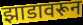
झाडावरून